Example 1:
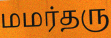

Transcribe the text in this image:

மமர்தரு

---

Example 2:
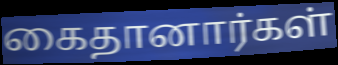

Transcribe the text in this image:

கைதானார்கள்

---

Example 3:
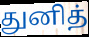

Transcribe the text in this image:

துனித்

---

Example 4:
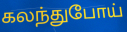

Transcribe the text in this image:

கலந்துபோய்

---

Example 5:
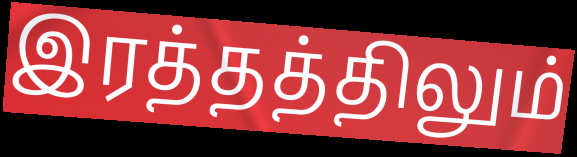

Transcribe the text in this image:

இரத்தத்திலும்